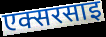
एक्सरसाइ